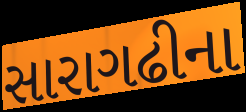
સારાગઢીના